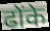
ढोंके